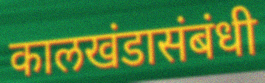
कालखंडासंबंधी